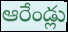
ఆరేండ్లు